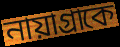
নায়াগ্রাকে